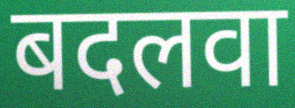
बदलवा